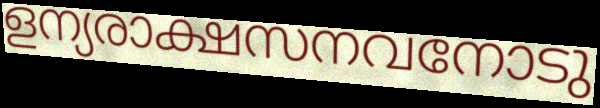
ളന്യരാക്ഷസനവനോടു